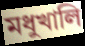
মধুখালি